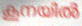
കൂനയിൽ